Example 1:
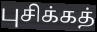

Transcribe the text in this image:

புசிக்கத்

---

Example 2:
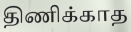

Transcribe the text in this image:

திணிக்காத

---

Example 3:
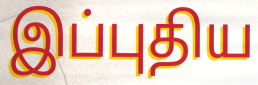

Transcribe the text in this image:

இப்புதிய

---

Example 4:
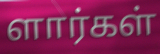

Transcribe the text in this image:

ளார்கள்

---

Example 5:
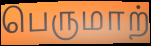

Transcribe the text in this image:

பெருமாற்